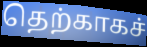
தெற்காகச்